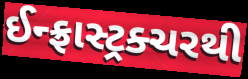
ઈન્ફ્રાસ્ટ્રક્ચરથી